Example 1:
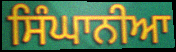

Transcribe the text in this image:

ਸਿੰਘਾਨੀਆ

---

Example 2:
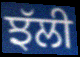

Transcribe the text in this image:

ਝੱਲੀ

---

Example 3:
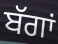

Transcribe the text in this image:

ਬੱਗਾਂ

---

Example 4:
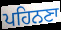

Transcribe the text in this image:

ਪਹਿਨਣਾ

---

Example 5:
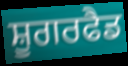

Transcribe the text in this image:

ਸ਼ੂਗਰਫੈਡ